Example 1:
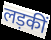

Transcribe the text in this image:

लड़कीं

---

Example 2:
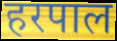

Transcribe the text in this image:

हरपाल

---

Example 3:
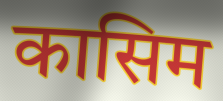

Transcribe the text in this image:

कासिम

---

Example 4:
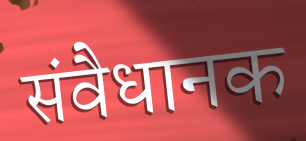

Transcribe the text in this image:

संवैधानक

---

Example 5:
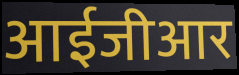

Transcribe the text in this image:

आईजीआर